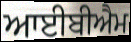
ਆਈਬੀਐਮ